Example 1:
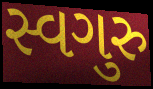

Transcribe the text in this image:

સ્વગુરુ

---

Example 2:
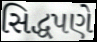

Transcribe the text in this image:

સિદ્ધપણે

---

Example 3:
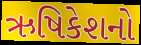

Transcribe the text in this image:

ઋષિકેશનો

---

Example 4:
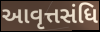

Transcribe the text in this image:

આવૃત્તસંધિ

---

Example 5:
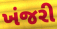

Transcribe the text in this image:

ખંજરી